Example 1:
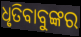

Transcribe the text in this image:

ଧୃତିବାବୁଙ୍କର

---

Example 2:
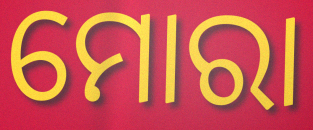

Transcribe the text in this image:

ମୋରା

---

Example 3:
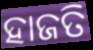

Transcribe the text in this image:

ହାଜତି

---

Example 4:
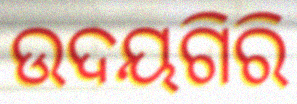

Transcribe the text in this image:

ଉଦୟଗିରି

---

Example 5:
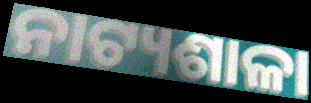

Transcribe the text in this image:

ନାଟ୍ୟଶାଳା